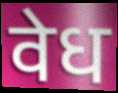
वेध